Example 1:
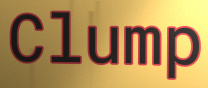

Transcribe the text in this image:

Clump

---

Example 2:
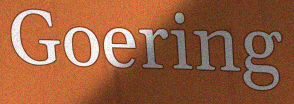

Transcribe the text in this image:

Goering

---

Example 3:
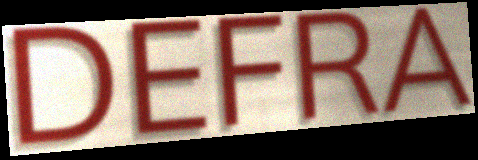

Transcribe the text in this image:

DEFRA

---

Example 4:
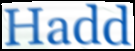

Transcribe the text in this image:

Hadd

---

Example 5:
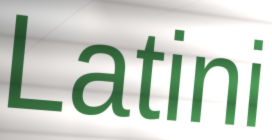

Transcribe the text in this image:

Latini